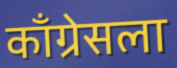
काँग्रेसला